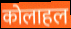
कोलाहल